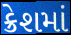
ક્રેશમાં